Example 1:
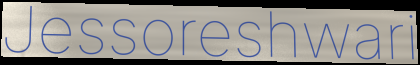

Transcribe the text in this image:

Jessoreshwari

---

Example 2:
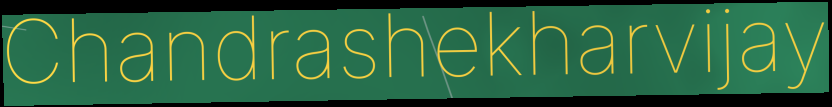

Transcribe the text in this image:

Chandrashekharvijay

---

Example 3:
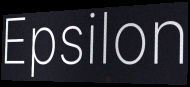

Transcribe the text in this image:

Epsilon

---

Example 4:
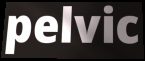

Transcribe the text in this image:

pelvic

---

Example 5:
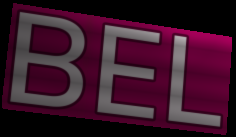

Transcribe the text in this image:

BEL